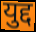
युद्द